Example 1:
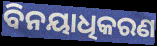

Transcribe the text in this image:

ବିନୟାଧିକରଣ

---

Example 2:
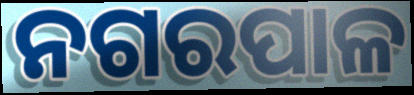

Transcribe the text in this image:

ନଗରପାଳ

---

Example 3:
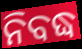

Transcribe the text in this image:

ନିବଦ୍ଧ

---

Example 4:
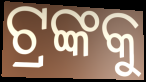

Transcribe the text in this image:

ଟ୍ରଙ୍କକୁ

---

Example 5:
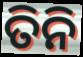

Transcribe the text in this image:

ତିନି